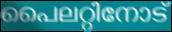
പൈലറ്റിനോട്